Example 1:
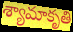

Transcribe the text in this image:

శ్యామాకృతి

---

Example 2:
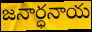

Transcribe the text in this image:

జనార్ధనాయ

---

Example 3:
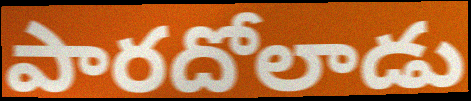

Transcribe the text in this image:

పారదోలాడు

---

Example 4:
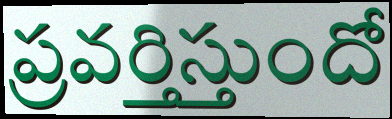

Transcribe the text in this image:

ప్రవర్తిస్తుందో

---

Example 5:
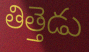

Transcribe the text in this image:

తిత్తెడు